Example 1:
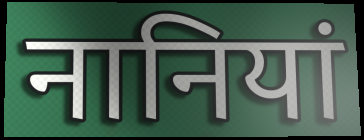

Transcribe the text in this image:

नानियां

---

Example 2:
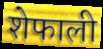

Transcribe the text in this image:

शेफाली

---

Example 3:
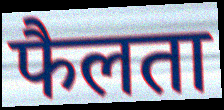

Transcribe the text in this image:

फैलता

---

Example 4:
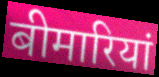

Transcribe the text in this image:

बीमारियां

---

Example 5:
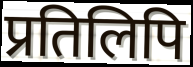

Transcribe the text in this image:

प्रतिलिपि